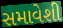
સમાવેશી